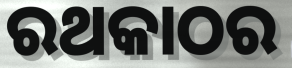
ରଥକାଠର